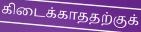
கிடைக்காததற்குக்